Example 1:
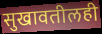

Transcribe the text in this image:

सुखावतीलही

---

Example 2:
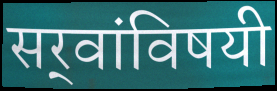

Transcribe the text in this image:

सर्वांविषयी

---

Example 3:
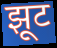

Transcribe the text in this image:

झूट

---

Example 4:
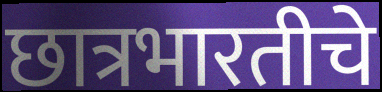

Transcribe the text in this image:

छात्रभारतीचे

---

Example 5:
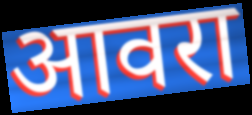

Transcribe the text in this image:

आवरा